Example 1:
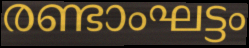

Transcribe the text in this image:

രണ്ടാംഘട്ടം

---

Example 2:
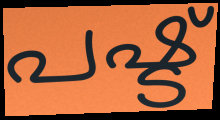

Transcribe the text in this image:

പഷ്ട്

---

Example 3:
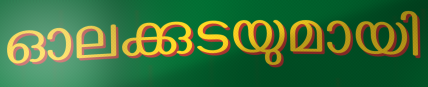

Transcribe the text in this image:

ഓലക്കുടയുമായി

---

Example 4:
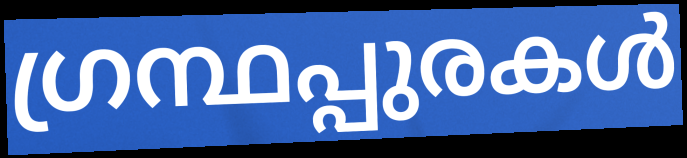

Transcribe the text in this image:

ഗ്രന്ഥപ്പുരകൾ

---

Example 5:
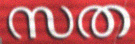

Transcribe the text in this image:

സത